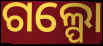
ଗଲ୍ପୋ